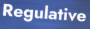
Regulative